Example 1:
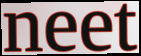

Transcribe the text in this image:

neet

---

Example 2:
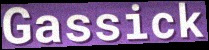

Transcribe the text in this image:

Gassick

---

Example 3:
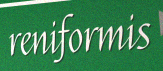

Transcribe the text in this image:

reniformis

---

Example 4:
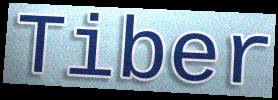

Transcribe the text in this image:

Tiber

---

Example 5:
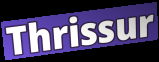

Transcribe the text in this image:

Thrissur